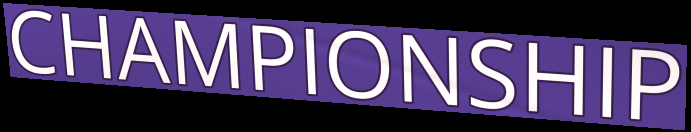
CHAMPIONSHIP